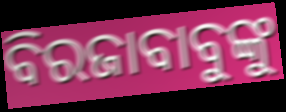
ବିରଜାବାବୁଙ୍କୁ